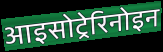
आइसोट्रेरिनोइन